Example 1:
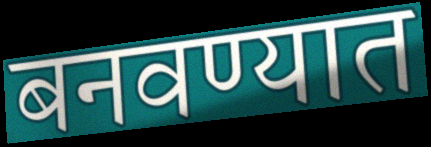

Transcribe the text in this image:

बनवण्यात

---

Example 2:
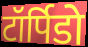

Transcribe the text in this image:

टॉर्पिडो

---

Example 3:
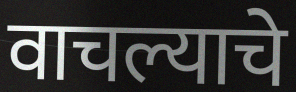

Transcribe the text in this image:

वाचल्याचे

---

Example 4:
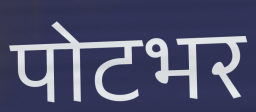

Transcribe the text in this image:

पोटभर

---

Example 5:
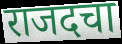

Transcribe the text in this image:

राजदचा